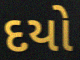
દયો